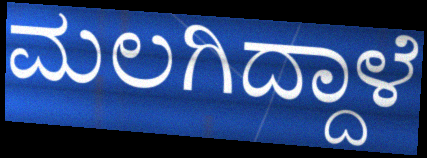
ಮಲಗಿದ್ದಾಳೆ